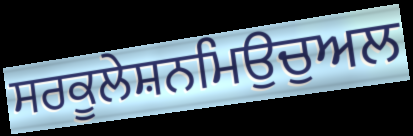
ਸਰਕੂਲੇਸ਼ਨਮਿਉਚੁਅਲ